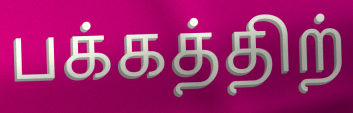
பக்கத்திற்